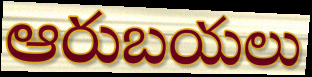
ఆరుబయలు